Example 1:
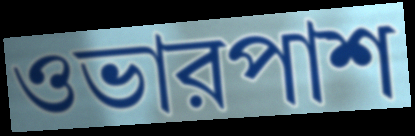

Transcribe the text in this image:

ওভারপাশ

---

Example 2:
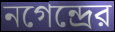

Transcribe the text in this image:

নগেন্দ্রের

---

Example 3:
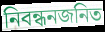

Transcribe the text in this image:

নিবন্ধনজনিত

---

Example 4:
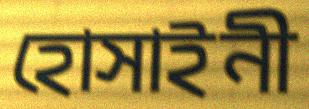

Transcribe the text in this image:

হোসাইনী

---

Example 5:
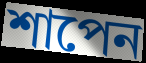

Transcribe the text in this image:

শাপেন